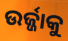
ଉର୍ଜ୍ଜାକୁ